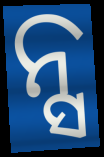
ନ୍ସ